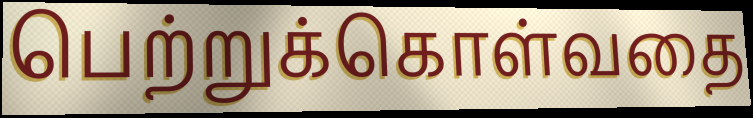
பெற்றுக்கொள்வதை